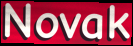
Novak